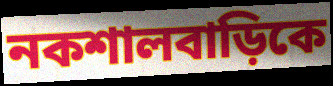
নকশালবাড়িকে